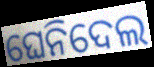
ଘେନିଦେଲ